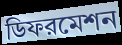
ডিফরমেশন